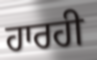
ਹਾਰਹੀ